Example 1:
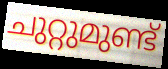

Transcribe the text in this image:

ചുറ്റുമുണ്ട്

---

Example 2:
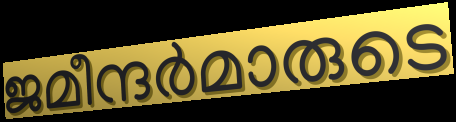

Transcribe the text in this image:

ജമീന്ദർമാരുടെ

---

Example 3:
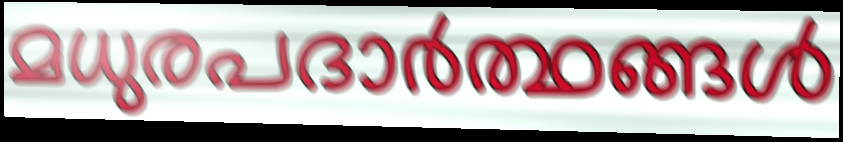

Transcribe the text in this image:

മധുരപദാർത്ഥങ്ങൾ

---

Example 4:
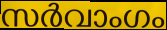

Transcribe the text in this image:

സർവാംഗം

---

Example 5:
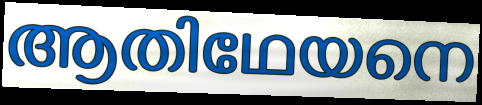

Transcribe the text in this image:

ആതിഥേയനെ